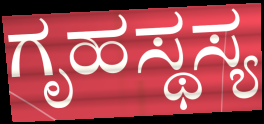
ಗೃಹಸ್ಥಸ್ಯ